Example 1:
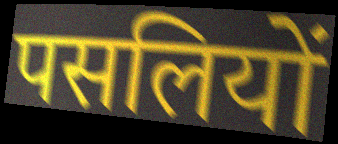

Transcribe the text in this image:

पसलियों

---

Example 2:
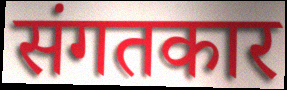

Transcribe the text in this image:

संगतकार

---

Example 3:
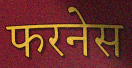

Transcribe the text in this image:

फरनेस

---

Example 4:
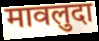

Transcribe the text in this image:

मावलुदा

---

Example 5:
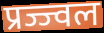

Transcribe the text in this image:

प्रज्ज्वल